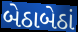
બેઠાબેઠાં